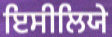
ਇਸੀਲਿਯੇ